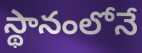
స్థానంలోనే